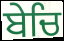
ਬੇਚਿ